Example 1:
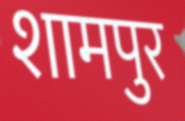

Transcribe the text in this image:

शामपुर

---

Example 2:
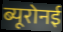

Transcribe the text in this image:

ब्यूरोनई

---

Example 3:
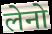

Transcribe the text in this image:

लेनो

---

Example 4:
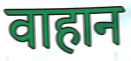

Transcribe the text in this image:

वाहान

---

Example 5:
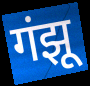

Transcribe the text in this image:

गंझू